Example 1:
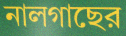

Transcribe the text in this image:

নালগাছের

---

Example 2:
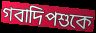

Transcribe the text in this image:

গবাদিপশুকে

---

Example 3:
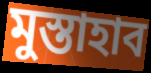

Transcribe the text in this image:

মুস্তাহাব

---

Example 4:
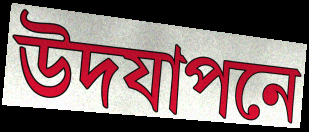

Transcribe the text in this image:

উদযাপনে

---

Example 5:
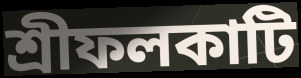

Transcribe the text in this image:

শ্রীফলকাটি